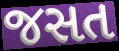
જસત